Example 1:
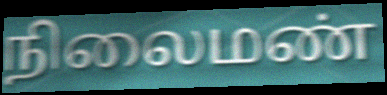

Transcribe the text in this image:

நிலைமண்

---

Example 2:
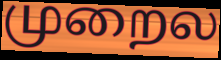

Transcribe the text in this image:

முறைல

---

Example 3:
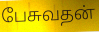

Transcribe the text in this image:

பேசுவதன்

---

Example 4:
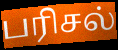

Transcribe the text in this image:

பரிசல்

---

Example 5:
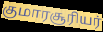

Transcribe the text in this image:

குமாரசூரியர்